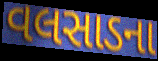
વલસાડના